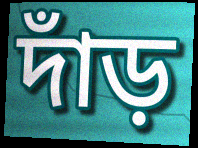
দাঁড়